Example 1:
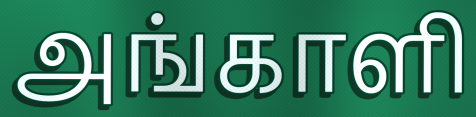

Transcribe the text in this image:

அங்காளி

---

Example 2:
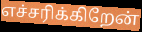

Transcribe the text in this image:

எச்சரிக்கிறேன்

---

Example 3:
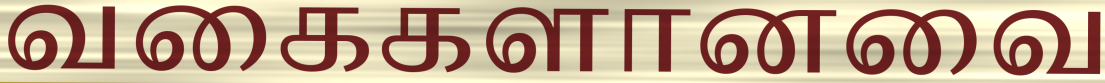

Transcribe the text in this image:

வகைகளானவை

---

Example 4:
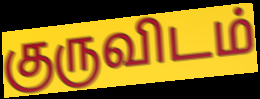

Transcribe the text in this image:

குருவிடம்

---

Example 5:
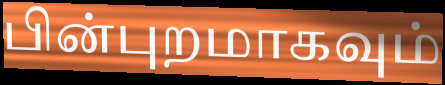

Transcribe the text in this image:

பின்புறமாகவும்